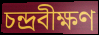
চন্দ্রবীক্ষণ